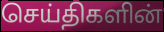
செய்திகளின்